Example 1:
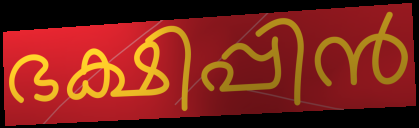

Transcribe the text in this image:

ഭക്ഷിപ്പിൻ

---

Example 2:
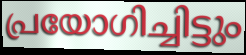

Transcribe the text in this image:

പ്രയോഗിച്ചിട്ടും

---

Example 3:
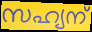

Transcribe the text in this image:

സഹ്യന്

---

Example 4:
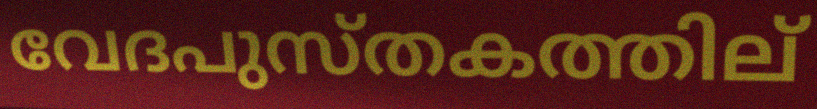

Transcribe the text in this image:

വേദപുസ്തകത്തില്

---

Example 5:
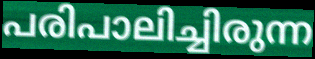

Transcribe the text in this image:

പരിപാലിച്ചിരുന്ന